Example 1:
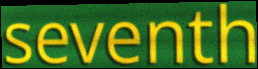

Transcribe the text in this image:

seventh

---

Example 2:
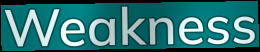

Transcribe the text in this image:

Weakness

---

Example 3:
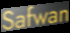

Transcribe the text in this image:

Safwan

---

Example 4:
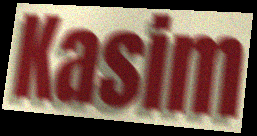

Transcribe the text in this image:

Kasim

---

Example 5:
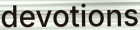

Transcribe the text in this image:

devotions